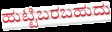
ಹುಟ್ಟಿಬರಬಹುದು